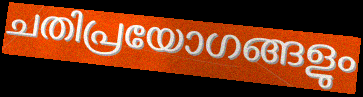
ചതിപ്രയോഗങ്ങളും